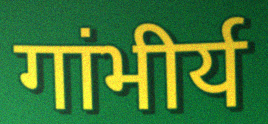
गांभीर्य